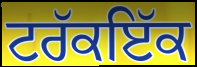
ਟਰੱਕਇੱਕ